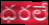
ధరలే